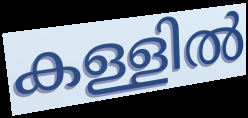
കള്ളിൽ